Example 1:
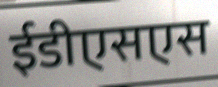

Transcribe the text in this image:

ईडीएसएस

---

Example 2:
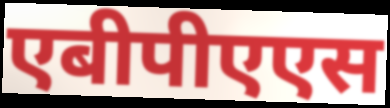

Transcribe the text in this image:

एबीपीएएस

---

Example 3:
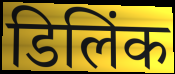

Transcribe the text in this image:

डिलिंक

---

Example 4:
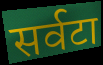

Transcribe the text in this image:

सर्वटा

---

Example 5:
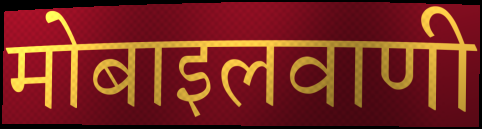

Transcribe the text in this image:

मोबाइलवाणी